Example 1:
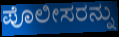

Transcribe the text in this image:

ಪೊಲೀಸರನ್ನು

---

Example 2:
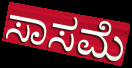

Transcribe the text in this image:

ಸಾಸಮೆ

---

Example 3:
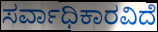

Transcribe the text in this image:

ಸರ್ವಾಧಿಕಾರವಿದೆ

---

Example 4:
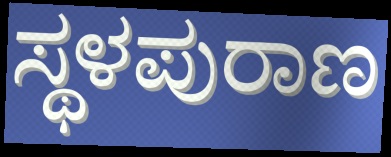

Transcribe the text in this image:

ಸ್ಥಳಪುರಾಣ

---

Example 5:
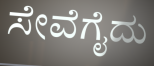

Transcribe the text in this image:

ಸೇವೆಗೈದು